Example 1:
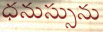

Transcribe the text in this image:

ధనుస్సును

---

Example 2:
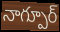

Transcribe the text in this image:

నాగ్పూర్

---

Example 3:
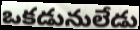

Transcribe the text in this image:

ఒకడునులేడు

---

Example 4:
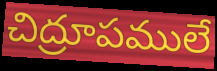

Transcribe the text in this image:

చిద్రూపములే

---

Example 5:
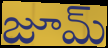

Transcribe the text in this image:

జూమ్